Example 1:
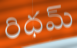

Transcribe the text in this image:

రిధమ్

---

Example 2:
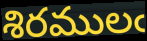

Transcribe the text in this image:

శిరములఁ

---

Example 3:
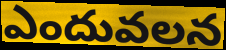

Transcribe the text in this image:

ఎందువలన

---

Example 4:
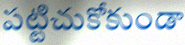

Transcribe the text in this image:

పట్టిచుకోకుండా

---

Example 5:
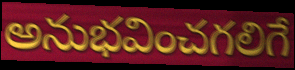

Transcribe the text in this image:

అనుభవించగలిగే